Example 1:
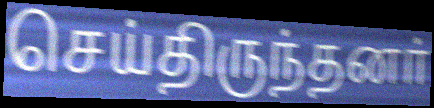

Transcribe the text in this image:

செய்திருந்தனர்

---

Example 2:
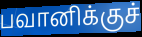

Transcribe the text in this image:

பவானிக்குச்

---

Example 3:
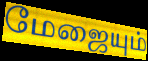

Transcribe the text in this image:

மேஜையும்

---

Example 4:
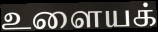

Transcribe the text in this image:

உளையக்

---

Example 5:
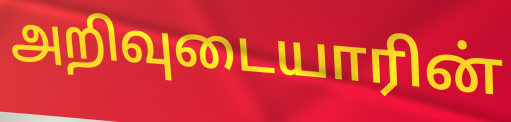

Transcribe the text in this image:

அறிவுடையாரின்